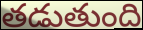
తడుతుంది